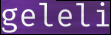
geleli